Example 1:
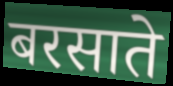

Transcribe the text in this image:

बरसाते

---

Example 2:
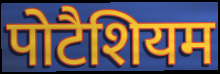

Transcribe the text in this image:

पोटैशियम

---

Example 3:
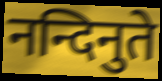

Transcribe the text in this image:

नन्दिनुते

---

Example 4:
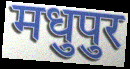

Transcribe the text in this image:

मधुपुर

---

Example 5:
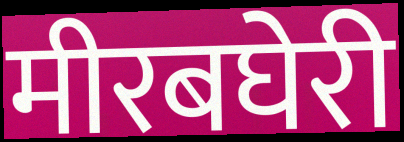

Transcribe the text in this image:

मीरबघेरी